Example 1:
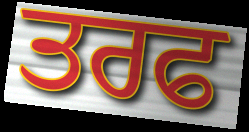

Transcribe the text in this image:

ਤਰਫ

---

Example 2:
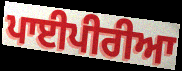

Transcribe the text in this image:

ਪਾਈਪੀਰੀਆ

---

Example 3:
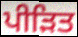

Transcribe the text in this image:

ਪੀੜਿਤ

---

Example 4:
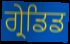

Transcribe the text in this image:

ਗ੍ਰੇਡਿਡ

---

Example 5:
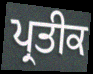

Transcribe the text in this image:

ਪ੍ਰਤੀਕ